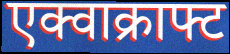
एक्वाक्राफ्ट